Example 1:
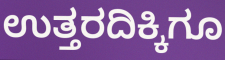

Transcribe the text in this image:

ಉತ್ತರದಿಕ್ಕಿಗೂ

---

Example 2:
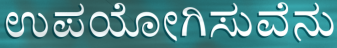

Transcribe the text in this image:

ಉಪಯೋಗಿಸುವೆನು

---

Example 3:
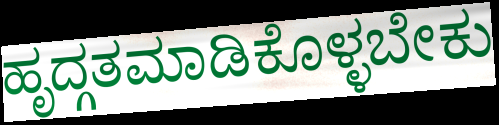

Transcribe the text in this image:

ಹೃದ್ಗತಮಾಡಿಕೊಳ್ಳಬೇಕು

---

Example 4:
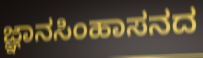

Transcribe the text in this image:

ಜ್ಞಾನಸಿಂಹಾಸನದ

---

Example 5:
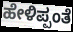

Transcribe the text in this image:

ಹೇಳಿಪ್ಪಂತೆ